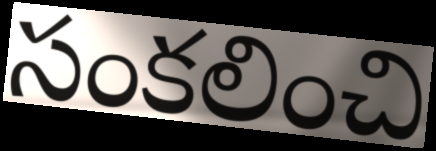
సంకలించి